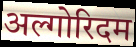
अल्गोरिदम